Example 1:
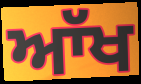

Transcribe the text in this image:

ਆੱਖ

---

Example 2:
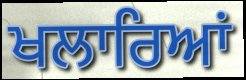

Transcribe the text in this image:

ਖਲਾਰਿਆਂ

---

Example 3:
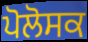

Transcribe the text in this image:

ਪੋਲੋਸਕ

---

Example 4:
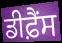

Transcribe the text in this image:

ਡੀਫ਼ੈਂਸ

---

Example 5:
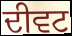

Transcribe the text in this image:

ਦੀਵਟ